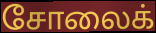
சோலைக்